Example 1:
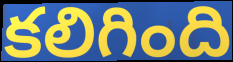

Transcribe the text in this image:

కలిగింది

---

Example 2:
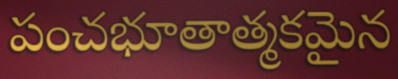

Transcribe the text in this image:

పంచభూతాత్మకమైన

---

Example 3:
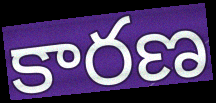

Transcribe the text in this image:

కారణ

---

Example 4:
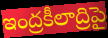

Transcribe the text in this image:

ఇంద్రకీలాద్రిపై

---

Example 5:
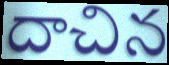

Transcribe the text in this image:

దాచిన